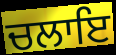
ਚਲਾਇ